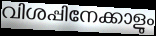
വിശപ്പിനേക്കാളും